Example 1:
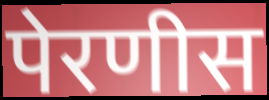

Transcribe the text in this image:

पेरणीस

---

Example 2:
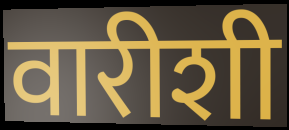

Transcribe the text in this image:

वारीशी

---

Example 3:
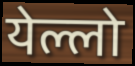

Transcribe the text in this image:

येल्लो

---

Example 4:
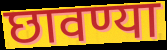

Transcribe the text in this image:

छावण्या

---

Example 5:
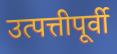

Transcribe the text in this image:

उत्पत्तीपूर्वी